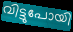
വിട്ടുപോയി